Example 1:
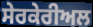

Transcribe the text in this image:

ਸੇਰਕੇਰੀਅਲ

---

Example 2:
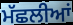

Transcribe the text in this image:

ਮੱਛਲੀਆਂ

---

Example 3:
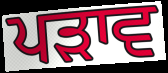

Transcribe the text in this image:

ਪੜਾਵ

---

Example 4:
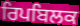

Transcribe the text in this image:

ਰਿਪਬਿਲਕ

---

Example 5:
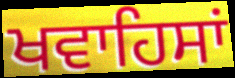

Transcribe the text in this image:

ਖਵਾਹਿਸਾਂ